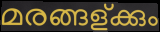
മരങ്ങള്ക്കും